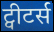
ट्वीटर्स